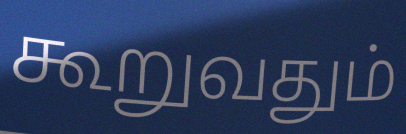
கூறுவதும்